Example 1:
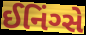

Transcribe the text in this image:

ઈનિંગ્સે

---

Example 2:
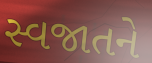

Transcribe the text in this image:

સ્વજાતને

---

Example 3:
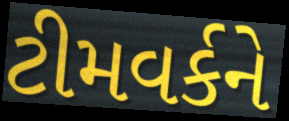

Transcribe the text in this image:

ટીમવર્કને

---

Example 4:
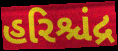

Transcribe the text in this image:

હરિશ્ચંદ્ર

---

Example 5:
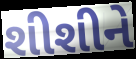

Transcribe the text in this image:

શીશીને